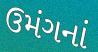
ઉમંગનાં